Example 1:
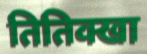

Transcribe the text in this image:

तितिक्खा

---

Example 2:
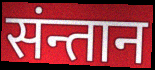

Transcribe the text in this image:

संन्तान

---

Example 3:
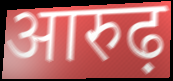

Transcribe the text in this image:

आरुढ़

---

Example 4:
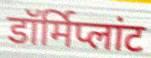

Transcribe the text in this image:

डॉर्मिप्लांट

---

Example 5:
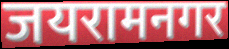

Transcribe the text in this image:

जयरामनगर